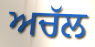
ਅਚੱਲ